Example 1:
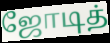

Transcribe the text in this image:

ஜோடித்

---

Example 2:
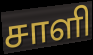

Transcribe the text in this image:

சாளி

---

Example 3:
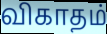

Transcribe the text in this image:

விகாதம்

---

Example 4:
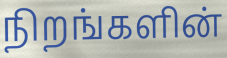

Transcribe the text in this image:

நிறங்களின்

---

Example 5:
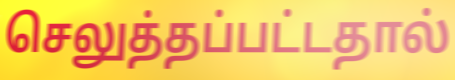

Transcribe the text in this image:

செலுத்தப்பட்டதால்